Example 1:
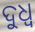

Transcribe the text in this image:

ଦୁଧ୍ଵ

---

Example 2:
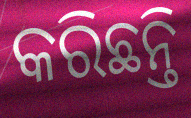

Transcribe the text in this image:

କରିଛନ୍ତି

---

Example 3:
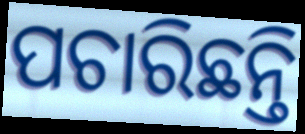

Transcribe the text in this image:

ପଚାରିଛନ୍ତି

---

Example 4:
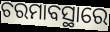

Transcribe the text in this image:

ଚରମାବସ୍ଥାରେ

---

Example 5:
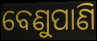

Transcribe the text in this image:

ବେଣୁପାଣି